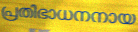
പ്രതിഭാധനനായ